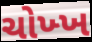
ચોખ્ખ